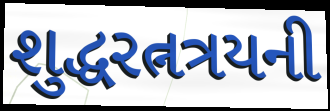
શુદ્ધરત્નત્રયની